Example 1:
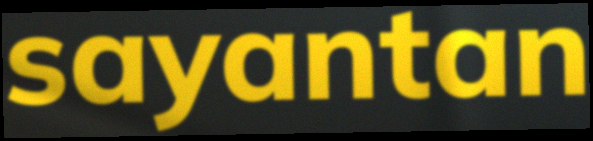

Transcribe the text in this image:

sayantan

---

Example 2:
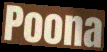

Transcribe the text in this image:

Poona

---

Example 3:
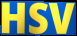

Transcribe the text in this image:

HSV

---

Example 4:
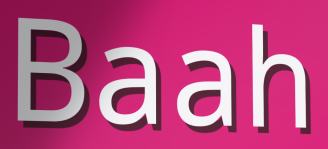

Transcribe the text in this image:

Baah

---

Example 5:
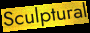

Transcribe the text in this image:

Sculptural